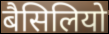
बैसिलियो